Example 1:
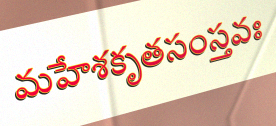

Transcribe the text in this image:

మహేశకృతసంస్తవః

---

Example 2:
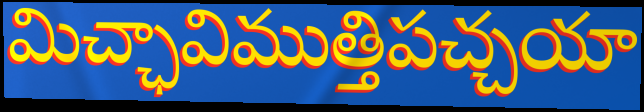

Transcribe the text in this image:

మిచ్ఛావిముత్తిపచ్చయా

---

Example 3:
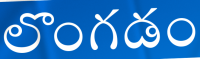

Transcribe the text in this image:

లొంగడం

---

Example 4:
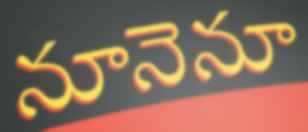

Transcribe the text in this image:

నూనెనూ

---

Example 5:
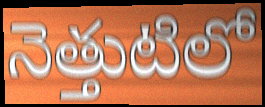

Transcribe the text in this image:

నెత్తుటిలో